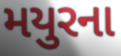
મયુરના